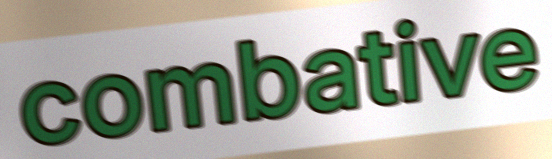
combative